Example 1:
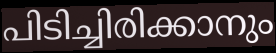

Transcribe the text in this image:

പിടിച്ചിരിക്കാനും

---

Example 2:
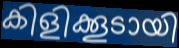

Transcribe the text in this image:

കിളിക്കൂടായി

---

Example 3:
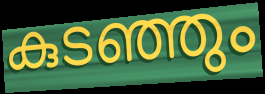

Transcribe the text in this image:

കുടഞ്ഞും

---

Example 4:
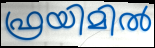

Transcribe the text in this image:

ഫ്രയിമിൽ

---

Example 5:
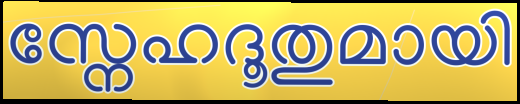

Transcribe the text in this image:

സ്നേഹദൂതുമായി